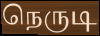
நெருடி